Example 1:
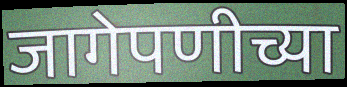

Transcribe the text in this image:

जागेपणीच्या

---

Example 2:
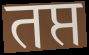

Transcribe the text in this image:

तप्त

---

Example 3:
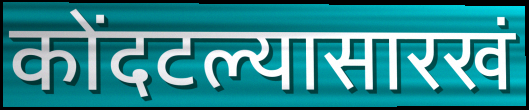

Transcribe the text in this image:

कोंदटल्यासारखं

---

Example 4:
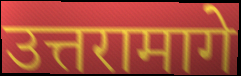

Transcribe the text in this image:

उत्तरामागे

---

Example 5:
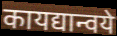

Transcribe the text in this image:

कायद्यान्वये